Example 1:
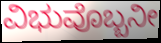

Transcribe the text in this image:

ವಿಭುವೊಬ್ಬನೀ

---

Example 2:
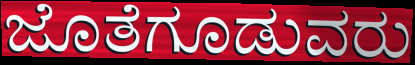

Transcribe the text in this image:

ಜೊತೆಗೂಡುವರು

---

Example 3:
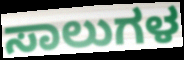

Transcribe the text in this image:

ಸಾಲುಗಳ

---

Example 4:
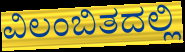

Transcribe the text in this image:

ವಿಲಂಬಿತದಲ್ಲಿ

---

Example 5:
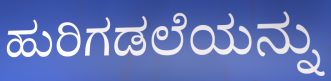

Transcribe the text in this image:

ಹುರಿಗಡಲೆಯನ್ನು